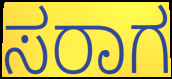
ಸರಾಗ